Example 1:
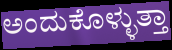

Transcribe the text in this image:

ಅಂದುಕೊಳ್ಳುತ್ತಾ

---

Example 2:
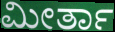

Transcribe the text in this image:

ಮೀರ್ತಾ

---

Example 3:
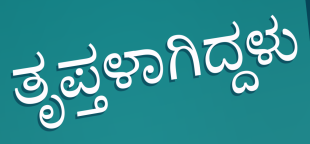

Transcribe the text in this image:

ತೃಪ್ತಳಾಗಿದ್ದಳು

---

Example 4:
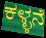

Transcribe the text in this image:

ಕಳ್ಳನೆ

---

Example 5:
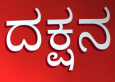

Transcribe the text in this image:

ದಕ್ಷನ